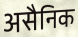
असैनिक